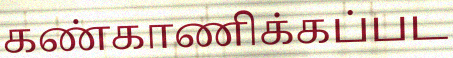
கண்காணிக்கப்பட